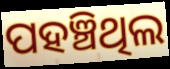
ପହଞ୍ଚିଥିଲ